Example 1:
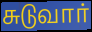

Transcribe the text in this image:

சுடுவார்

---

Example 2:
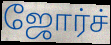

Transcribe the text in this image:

ஜோர்ச்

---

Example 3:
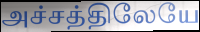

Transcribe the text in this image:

அச்சத்திலேயே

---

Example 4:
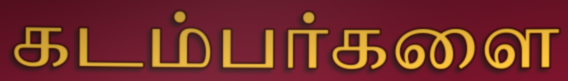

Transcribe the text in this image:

கடம்பர்களை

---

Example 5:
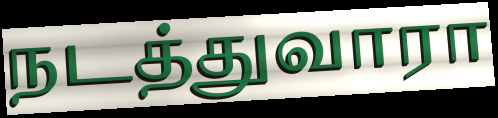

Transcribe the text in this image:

நடத்துவாரா